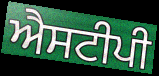
ਐਸਟੀਪੀ